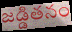
జడ్డితనం